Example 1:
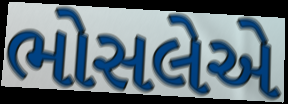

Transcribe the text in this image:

ભોસલેએ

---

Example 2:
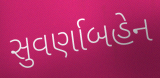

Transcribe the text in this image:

સુવર્ણાબહેન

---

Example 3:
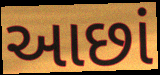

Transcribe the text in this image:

આછાં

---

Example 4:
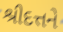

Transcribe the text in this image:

શ્રીદત્તને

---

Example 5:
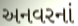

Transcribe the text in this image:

અનવરનાં